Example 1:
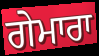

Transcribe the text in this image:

ਗੇਮਾਰਾ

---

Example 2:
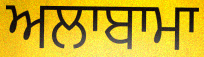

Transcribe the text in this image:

ਅਲਾਬਾਮਾ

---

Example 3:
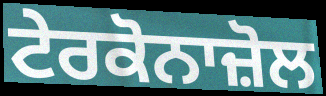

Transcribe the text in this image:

ਟੇਰਕੋਨਾਜ਼ੋਲ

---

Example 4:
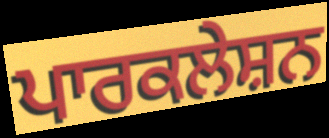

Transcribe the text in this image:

ਪਾਰਕਲੇਸ਼ਨ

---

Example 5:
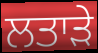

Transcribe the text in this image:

ਲਤਾਡ਼ੇ